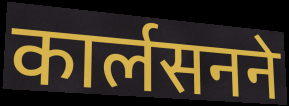
कार्लसनने